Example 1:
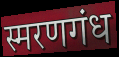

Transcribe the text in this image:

स्मरणगंध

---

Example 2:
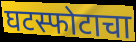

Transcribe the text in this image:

घटस्फोटाचा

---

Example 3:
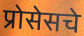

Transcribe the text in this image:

प्रोसेसचे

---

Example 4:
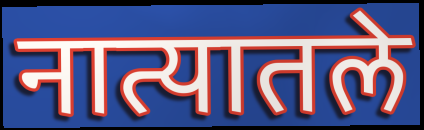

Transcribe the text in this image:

नात्यातले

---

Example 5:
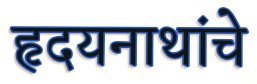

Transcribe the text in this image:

हृदयनाथांचे